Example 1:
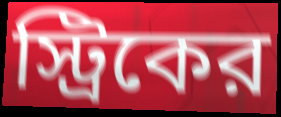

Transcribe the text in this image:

স্ট্রিকের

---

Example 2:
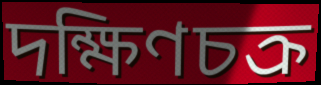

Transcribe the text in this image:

দক্ষিণচক্র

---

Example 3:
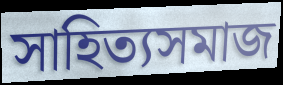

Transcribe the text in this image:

সাহিত্যসমাজ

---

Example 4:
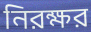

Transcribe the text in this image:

নিরক্ষর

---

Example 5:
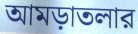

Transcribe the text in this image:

আমড়াতলার